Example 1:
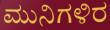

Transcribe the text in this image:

ಮುನಿಗಳಿರ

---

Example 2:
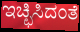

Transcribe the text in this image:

ಇಚ್ಛಿಸಿದಂತೆ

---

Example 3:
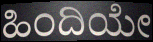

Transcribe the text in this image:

ಹಿಂದಿಯೇ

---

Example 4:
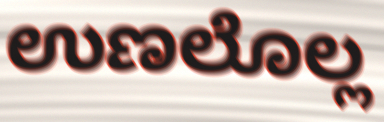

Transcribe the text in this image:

ಉಣಲೊಲ್ಲ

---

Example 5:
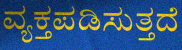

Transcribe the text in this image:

ವ್ಯಕ್ತಪಡಿಸುತ್ತದೆ